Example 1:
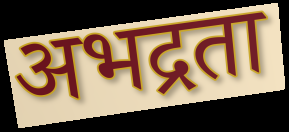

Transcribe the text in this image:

अभद्रता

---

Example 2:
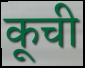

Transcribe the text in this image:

कूची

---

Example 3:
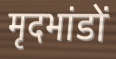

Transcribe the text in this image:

मृदभांडों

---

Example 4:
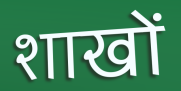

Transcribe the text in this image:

शाखों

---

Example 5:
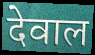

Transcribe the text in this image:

देवाल